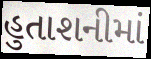
હુતાશનીમાં